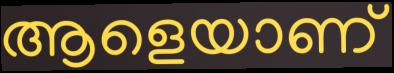
ആളെയാണ്